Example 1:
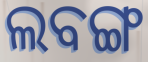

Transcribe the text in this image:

ଲବଙ୍ଗ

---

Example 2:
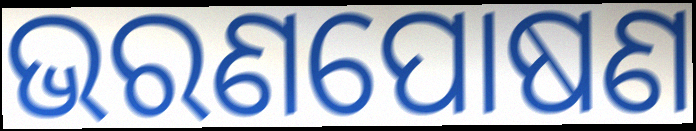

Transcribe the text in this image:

ଭରଣପୋଷଣ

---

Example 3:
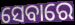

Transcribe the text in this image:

ସେବାରେ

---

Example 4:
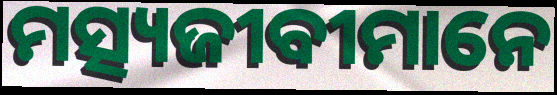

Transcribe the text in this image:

ମତ୍ସ୍ୟଜୀବୀମାନେ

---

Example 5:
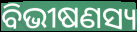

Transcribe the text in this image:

ବିଭୀଷଣସ୍ୟ